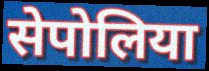
सेपोलिया